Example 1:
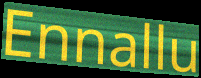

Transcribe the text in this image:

Ennallu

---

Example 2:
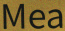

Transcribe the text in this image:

Mea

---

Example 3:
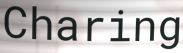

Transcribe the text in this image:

Charing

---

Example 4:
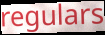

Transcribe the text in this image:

regulars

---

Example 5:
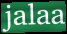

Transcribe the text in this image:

jalaa